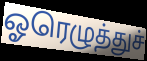
ஓரெழுத்துச்